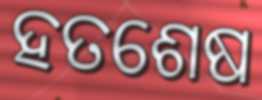
ହତଶେଷ